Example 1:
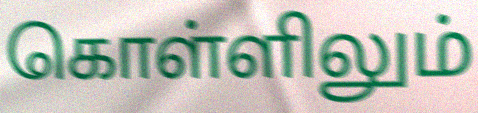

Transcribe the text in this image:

கொள்ளிலும்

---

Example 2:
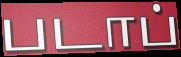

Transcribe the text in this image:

படாப்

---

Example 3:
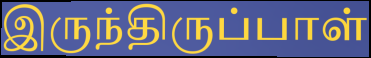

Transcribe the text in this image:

இருந்திருப்பாள்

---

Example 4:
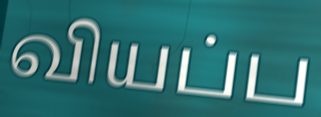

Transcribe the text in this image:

வியப்ப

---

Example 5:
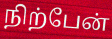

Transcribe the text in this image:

நிற்பேன்